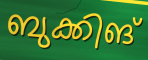
ബുക്കിങ്